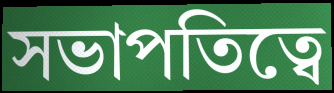
সভাপতিত্বে